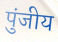
पुंजीय